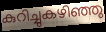
കുറിച്ചുകഴിഞ്ഞു